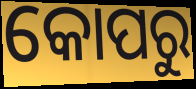
କୋପରୁ